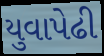
યુવાપેઢી